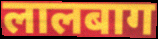
लालबाग